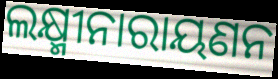
ଲକ୍ଷ୍ମୀନାରାୟଣନ